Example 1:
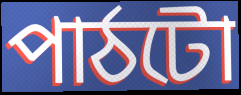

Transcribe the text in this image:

পাঠটো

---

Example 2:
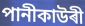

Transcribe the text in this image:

পানীকাউৰী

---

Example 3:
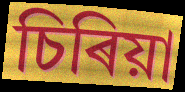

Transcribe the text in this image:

চিৰিয়া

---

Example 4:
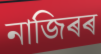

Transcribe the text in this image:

নাজিৰৰ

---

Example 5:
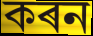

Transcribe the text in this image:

কৰন